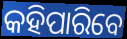
କହିପାରିବେ